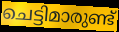
ചെട്ടിമാരുണ്ട്